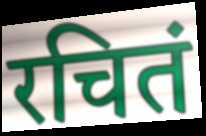
रचितं